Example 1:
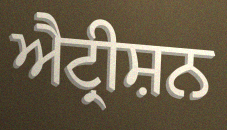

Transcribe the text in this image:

ਐਟ੍ਰੀਸ਼ਨ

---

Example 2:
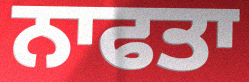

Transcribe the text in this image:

ਨਾਫਤਾ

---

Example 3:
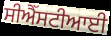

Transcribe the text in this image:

ਸੀਐੱਸਟੀਆਈ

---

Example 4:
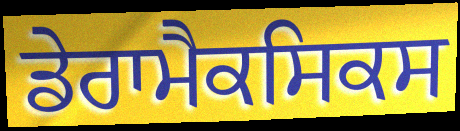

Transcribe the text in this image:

ਡੇਰਾਮੈਕਸਿਕਸ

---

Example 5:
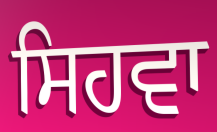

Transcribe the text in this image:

ਸਿਹਵਾ